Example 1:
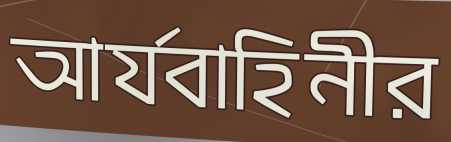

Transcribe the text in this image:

আর্যবাহিনীর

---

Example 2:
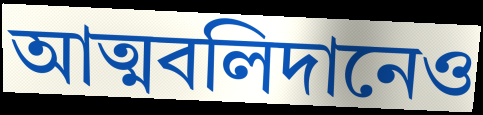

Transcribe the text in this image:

আত্মবলিদানেও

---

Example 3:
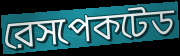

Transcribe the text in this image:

রেসপেকটেড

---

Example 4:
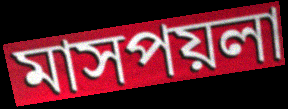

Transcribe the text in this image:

মাসপয়লা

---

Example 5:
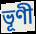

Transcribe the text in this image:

ভূণী